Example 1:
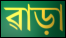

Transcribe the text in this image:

ৱাড়া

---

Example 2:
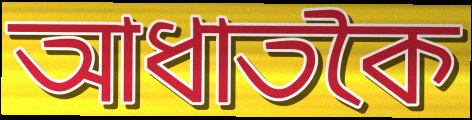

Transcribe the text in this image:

আধাতকৈ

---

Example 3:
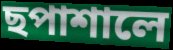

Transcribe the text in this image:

ছপাশালে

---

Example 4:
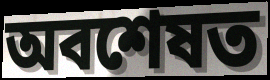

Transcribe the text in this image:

অবশেষত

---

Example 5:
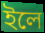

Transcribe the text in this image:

ইলে